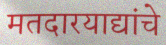
मतदारयाद्यांचे